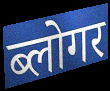
ब्लोगर